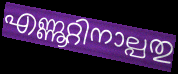
എണ്ണൂറ്റിനാല്പതു